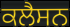
ਕਲੈਸਨ